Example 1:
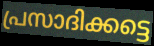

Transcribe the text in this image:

പ്രസാദിക്കട്ടെ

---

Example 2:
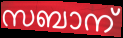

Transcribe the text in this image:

സബാന്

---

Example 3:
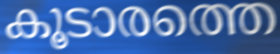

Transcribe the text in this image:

കൂടാരത്തെ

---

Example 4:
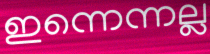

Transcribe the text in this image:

ഇന്നെന്നല്ല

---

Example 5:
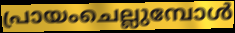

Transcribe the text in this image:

പ്രായംചെല്ലുമ്പോൾ